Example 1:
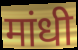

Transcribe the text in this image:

मांधी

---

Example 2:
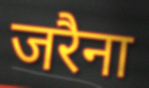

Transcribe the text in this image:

जरैना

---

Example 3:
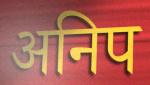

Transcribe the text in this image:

अनिप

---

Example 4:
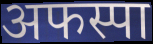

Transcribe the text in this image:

अफस्पा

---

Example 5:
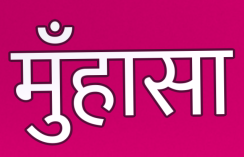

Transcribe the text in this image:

मुँहासा